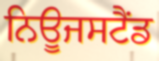
ਨਿਊਜਸਟੈਂਡ